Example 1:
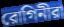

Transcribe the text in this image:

রোগিনীরা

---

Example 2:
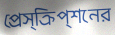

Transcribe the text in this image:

প্রেস্‌ক্রিপ্‌শনের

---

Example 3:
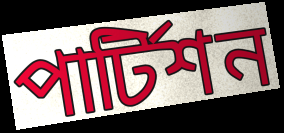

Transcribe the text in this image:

পার্টিশন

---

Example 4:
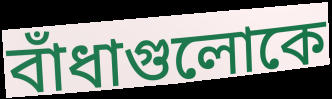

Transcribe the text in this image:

বাঁধাগুলোকে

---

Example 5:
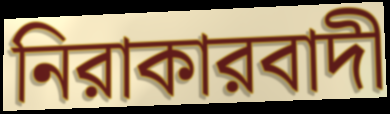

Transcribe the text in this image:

নিরাকারবাদী